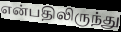
என்பதிலிருந்து